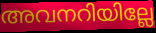
അവനറിയില്ലേ